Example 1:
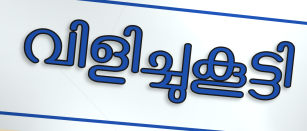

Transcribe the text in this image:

വിളിച്ചുകൂട്ടി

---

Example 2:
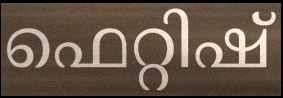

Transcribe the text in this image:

ഫെറ്റിഷ്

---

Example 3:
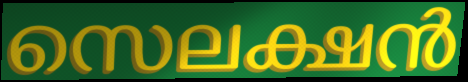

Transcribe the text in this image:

സെലക്ഷൻ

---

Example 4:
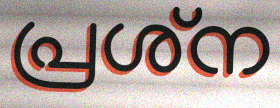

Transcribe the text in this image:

പ്രശ്‌ന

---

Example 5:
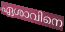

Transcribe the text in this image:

ഏശാവിനെ